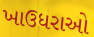
ખાઉધરાઓ